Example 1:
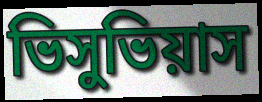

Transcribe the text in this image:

ভিসুভিয়াস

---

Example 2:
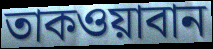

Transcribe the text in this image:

তাকওয়াবান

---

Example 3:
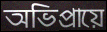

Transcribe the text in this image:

অভিপ্রায়ে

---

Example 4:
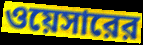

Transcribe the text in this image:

ওয়েসারের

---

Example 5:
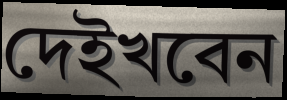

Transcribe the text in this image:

দেইখবেন